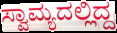
ಸ್ವಾಮ್ಯದಲ್ಲಿದ್ದ